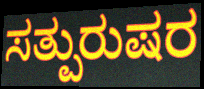
ಸತ್ಪುರುಷರ